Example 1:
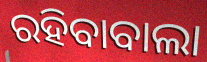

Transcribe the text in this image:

ରହିବାବାଲା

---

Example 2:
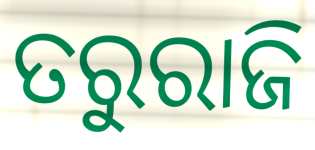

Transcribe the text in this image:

ତରୁରାଜି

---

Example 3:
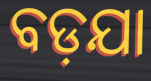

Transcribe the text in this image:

ବଡ଼ଯା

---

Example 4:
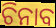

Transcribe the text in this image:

ଚିନାବ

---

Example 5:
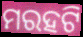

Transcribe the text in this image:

ମରହଟି